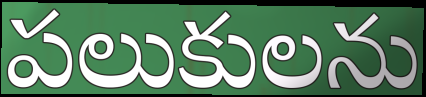
పలుకులను